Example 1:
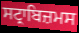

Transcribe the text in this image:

ਸਟ੍ਰਾਬਿਜ਼ਮਸ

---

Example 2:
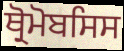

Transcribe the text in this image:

ਥ੍ਰੋਮੋਬਸਿਸ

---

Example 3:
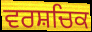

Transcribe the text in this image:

ਵਰਸ਼ਚਿਕ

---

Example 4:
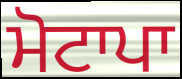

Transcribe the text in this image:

ਮੋਟਾਪਾ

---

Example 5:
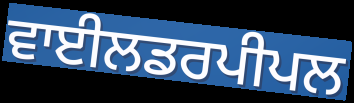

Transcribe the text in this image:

ਵਾਈਲਡਰਪੀਪਲ